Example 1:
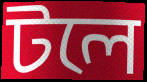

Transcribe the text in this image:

টলে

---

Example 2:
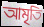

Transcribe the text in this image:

আমৃতি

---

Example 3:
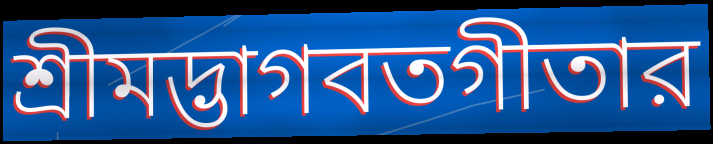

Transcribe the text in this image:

শ্রীমদ্ভাগবতগীতার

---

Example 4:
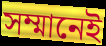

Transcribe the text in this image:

সম্মানেই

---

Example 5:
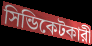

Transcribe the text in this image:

সিন্ডিকেটকারী